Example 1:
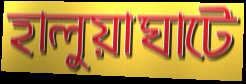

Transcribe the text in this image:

হালুয়াঘাটে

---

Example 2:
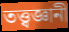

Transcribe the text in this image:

তত্ত্বজ্ঞানী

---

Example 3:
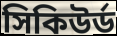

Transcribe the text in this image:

সিকিউর্ড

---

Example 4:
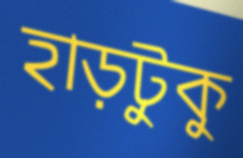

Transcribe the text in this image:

হাড়টুকু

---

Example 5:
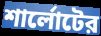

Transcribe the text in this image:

শার্লোটের